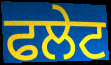
ਫਲੇਟ